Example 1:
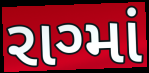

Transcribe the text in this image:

રાગ્માં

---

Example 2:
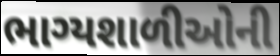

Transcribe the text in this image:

ભાગ્યશાળીઓની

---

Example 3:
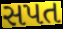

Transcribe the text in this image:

સપત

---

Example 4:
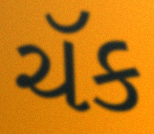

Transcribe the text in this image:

ચૅક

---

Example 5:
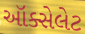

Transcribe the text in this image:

ઑક્સેલેટ